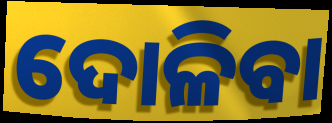
ଦୋଳିବା